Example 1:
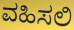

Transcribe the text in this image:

ವಹಿಸಲಿ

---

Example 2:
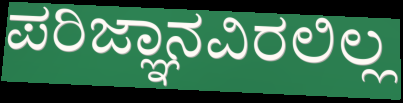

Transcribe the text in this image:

ಪರಿಜ್ಞಾನವಿರಲಿಲ್ಲ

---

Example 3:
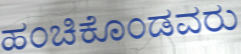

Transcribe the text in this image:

ಹಂಚಿಕೊಂಡವರು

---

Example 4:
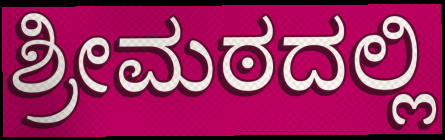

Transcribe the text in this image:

ಶ್ರೀಮಠದಲ್ಲಿ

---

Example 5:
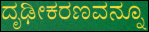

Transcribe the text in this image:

ದೃಢೀಕರಣವನ್ನೂ